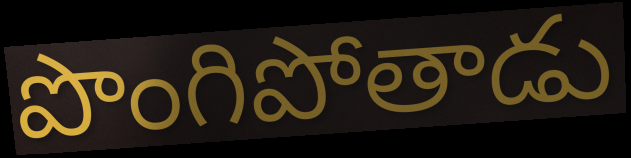
పొంగిపోతాడు